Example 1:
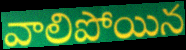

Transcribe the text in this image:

వాలిపోయిన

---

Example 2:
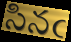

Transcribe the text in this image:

సినఁ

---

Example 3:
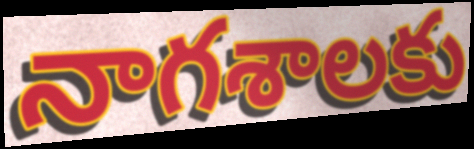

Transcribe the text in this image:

నాగశాలకు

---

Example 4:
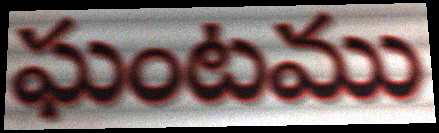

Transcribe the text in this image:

ఘంటము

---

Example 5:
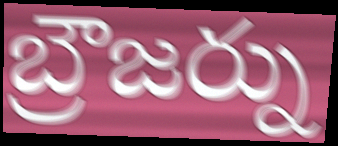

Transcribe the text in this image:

బ్రౌజర్ను